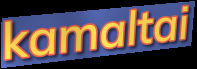
kamaltai